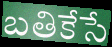
బతికేసే